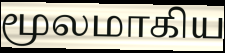
மூலமாகிய